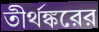
তীর্থঙ্করের